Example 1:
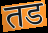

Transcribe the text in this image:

तड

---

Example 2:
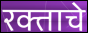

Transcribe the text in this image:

रक्ताचे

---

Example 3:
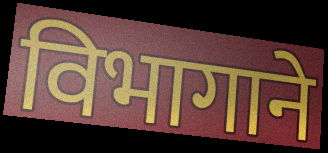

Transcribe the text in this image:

विभागाने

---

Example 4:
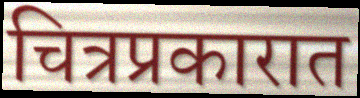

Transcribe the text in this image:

चित्रप्रकारात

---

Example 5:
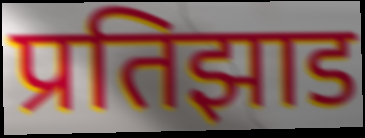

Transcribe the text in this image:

प्रतिझाड